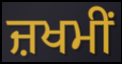
ਜ਼ਖਮੀਂ